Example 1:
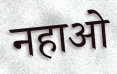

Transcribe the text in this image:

नहाओ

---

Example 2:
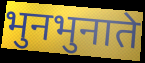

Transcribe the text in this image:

भुनभुनाते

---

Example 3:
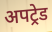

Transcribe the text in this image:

अपट्रेड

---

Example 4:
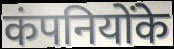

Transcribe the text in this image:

कंपनियोंके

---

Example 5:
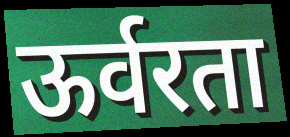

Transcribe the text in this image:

ऊर्वरता